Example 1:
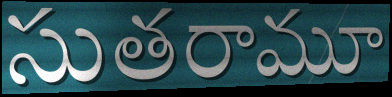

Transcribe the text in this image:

సుతరామూ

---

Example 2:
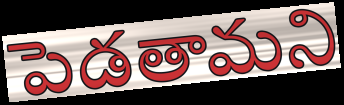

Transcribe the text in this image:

పెడతామని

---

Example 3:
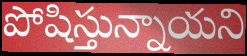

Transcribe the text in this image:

పోషిస్తున్నాయని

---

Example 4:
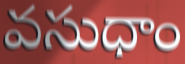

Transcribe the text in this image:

వసుధాం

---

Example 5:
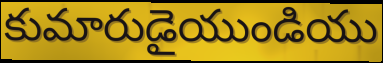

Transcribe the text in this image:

కుమారుడైయుండియు